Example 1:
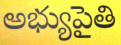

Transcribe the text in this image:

అభ్యుపైతి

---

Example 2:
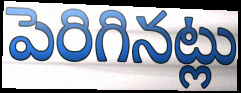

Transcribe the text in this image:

పెరిగినట్లు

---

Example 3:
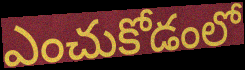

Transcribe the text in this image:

ఎంచుకోడంలో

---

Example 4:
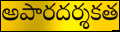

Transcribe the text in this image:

అపారదర్శకత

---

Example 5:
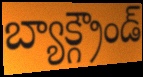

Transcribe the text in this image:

బ్యాక్గ్రౌండ్